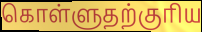
கொள்ளுதற்குரிய